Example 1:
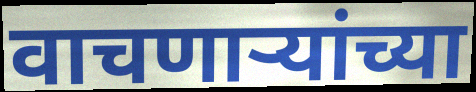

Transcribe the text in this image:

वाचणार्‍यांच्या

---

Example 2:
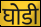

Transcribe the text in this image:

घोडी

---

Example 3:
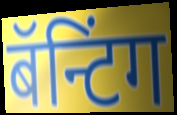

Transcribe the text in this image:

बॅन्टिंग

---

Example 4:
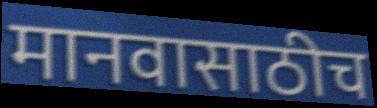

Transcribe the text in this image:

मानवासाठीच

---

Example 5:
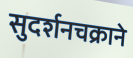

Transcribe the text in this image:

सुदर्शनचक्राने